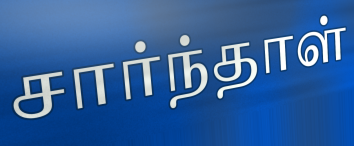
சார்ந்தாள்